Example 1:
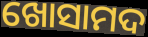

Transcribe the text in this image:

ଖୋସାମଦ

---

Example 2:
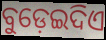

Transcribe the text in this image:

ବୁଡ଼େଇଦିଏ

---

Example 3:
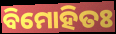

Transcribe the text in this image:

ବିମୋହିତଃ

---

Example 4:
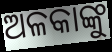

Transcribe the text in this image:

ଅଳକାଙ୍କୁ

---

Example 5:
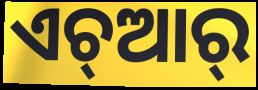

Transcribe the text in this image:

ଏଚ୍ଆର୍